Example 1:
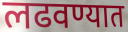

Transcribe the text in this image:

लढवण्यात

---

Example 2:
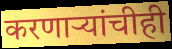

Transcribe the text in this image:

करणाऱ्यांचीही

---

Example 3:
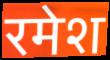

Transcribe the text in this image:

रमेश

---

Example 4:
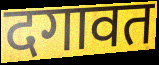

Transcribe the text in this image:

दगावत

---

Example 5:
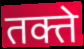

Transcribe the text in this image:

तक्ते